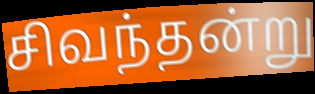
சிவந்தன்று